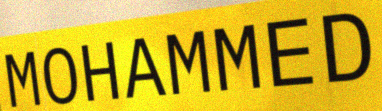
MOHAMMED